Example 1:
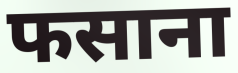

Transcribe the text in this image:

फसाना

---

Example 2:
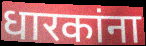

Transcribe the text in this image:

धारकांना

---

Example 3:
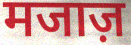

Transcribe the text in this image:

मजाज़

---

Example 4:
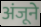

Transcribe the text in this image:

अंजूने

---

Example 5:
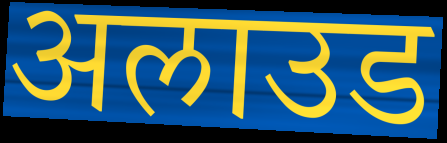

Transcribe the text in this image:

अलाउड